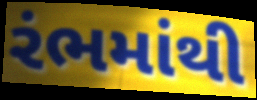
રંભમાંથી